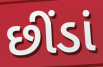
છીંડાં